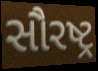
સૌરષ્ટ્ર